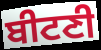
ਬੀਟਣੀ